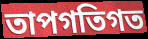
তাপগতিগত